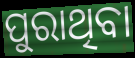
ପୁରାଥିବା